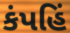
કંપહિં